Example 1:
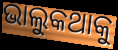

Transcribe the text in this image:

ଭାଲୁକଥାକୁ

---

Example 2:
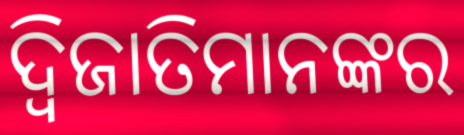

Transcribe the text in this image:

ଦ୍ୱିଜାତିମାନଙ୍କର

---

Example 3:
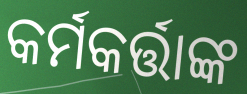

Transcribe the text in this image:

କର୍ମକର୍ତ୍ତାଙ୍କ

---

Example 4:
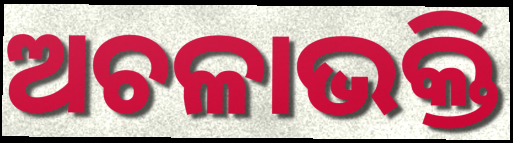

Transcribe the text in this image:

ଅଚଳାଭକ୍ତି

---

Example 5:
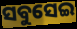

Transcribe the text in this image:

ସବୁସେଇ